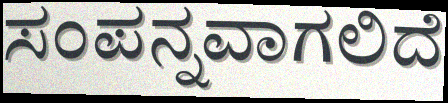
ಸಂಪನ್ನವಾಗಲಿದೆ